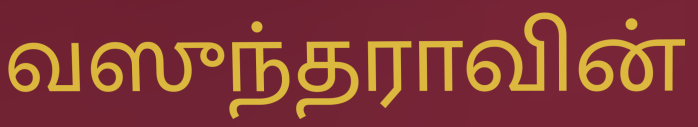
வஸுந்தராவின்